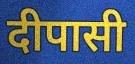
दीपासी